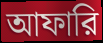
আফারি